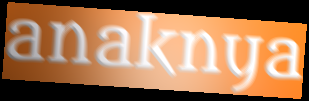
anaknya